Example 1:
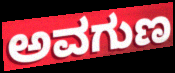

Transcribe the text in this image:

ಅವಗುಣ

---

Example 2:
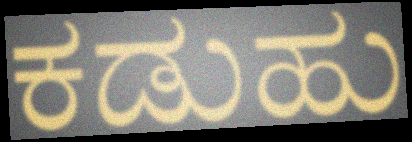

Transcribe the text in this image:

ಕಡುಹು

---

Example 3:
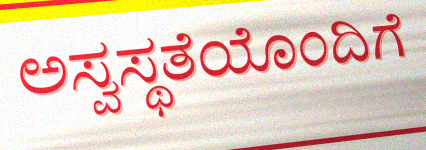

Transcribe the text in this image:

ಅಸ್ವಸ್ಥತೆಯೊಂದಿಗೆ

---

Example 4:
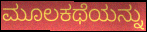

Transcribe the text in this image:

ಮೂಲಕಥೆಯನ್ನು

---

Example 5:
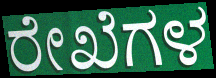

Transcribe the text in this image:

ರೇಖೆಗಳ